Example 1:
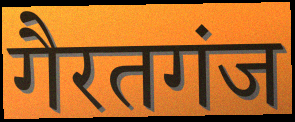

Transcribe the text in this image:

गैरतगंज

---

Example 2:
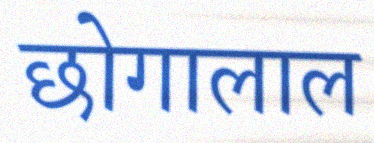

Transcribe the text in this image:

छोगालाल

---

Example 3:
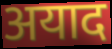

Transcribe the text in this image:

अयाद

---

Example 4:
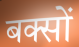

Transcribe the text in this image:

बक्सों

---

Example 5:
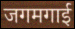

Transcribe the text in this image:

जगमगाई